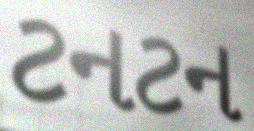
ટનટન